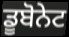
ਡੂਬੋਨੇਟ